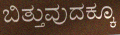
ಬಿತ್ತುವುದಕ್ಕೂ